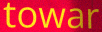
towar